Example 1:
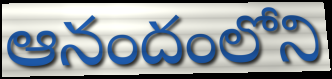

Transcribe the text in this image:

ఆనందంలోని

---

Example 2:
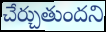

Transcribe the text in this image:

చేర్చుతుందని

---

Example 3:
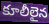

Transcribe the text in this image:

కూలీలైన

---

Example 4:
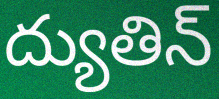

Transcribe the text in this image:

ద్యుతిన్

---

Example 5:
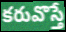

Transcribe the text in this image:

కరువొస్తే